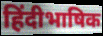
हिंदीभाषिक